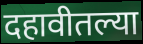
दहावीतल्या